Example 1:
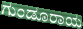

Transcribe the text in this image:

ಗುಂಡೂರಾಯ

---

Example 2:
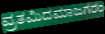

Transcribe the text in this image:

ವ್ರತಮಿದಮಾಜಗರಂ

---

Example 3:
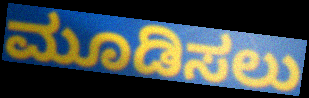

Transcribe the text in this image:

ಮೂಡಿಸಲು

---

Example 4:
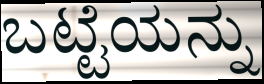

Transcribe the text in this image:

ಬಟ್ಟೆಯನ್ನು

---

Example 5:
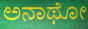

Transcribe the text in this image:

ಅನಾಥೋ